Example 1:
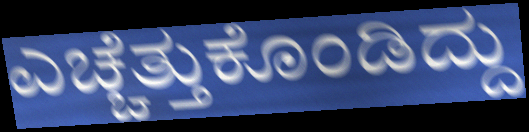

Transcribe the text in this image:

ಎಚ್ಚೆತ್ತುಕೊಂಡಿದ್ದು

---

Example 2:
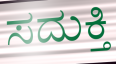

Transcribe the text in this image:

ಸದುಕ್ತಿ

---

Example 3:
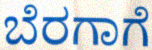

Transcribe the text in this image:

ಬೆರಗಾಗೆ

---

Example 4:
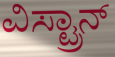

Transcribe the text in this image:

ವಿಸ್ಟ್ರಾನ್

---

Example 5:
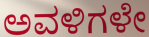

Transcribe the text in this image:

ಅವಳಿಗಳೇ